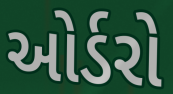
ઓર્ડરો